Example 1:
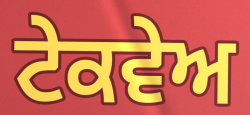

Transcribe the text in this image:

ਟੇਕਵੇਅ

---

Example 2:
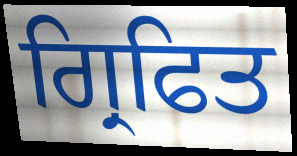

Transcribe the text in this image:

ਗ੍ਰਿਫਿਤ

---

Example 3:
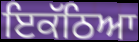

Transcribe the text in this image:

ਇਕੱਠਿਆ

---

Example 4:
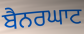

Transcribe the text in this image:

ਬੈਨਰਘਾਟ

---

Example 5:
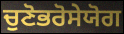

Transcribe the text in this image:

ਚੁਣੋਭਰੋਸੇਯੋਗ